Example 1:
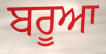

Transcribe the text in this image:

ਬਰੂਆ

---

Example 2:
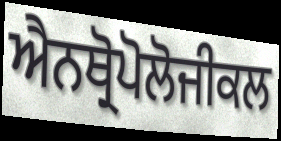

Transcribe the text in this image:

ਐਨਥ੍ਰੋਪੋਲੋਜੀਕਲ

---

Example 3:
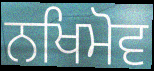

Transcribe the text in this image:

ਨਖਿਮੋਵ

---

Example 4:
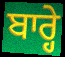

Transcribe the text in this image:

ਬਾਰ੍ਹੇ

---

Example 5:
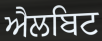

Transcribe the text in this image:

ਐਲਬਿਟ